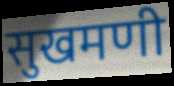
सुखमणी